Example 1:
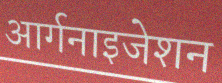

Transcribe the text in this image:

आर्गनाइजेशन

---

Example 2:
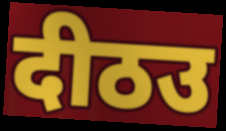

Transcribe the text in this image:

दीठउ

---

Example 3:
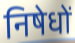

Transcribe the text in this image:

निषेधों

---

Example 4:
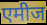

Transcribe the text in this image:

एमीज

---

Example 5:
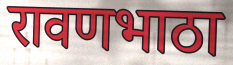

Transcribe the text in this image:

रावणभाठा